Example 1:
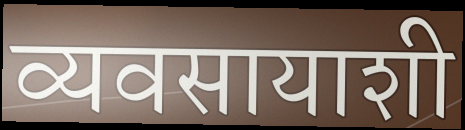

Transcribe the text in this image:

व्यवसायाशी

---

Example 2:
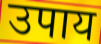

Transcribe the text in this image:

उपाय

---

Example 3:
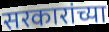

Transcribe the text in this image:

सरकारांच्या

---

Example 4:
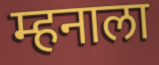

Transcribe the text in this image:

म्हनाला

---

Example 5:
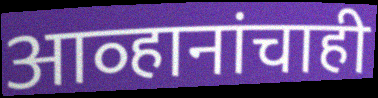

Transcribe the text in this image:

आव्हानांचाही